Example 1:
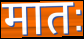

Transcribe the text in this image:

मातः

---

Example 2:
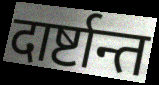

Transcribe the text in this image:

दार्ष्टान्त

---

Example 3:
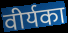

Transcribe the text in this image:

वीर्यका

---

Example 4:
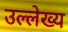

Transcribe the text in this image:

उल्लेख्य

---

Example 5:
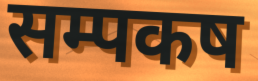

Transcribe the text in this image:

सम्पकष